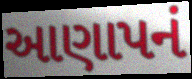
આણાપનં